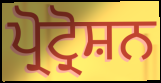
ਪ੍ਰੋਟ੍ਰੋਸ਼ਨ